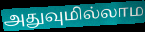
அதுவுமில்லாம